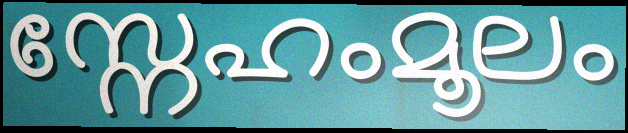
സ്നേഹംമൂലം